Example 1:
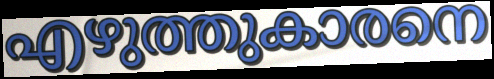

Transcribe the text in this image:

എഴുത്തുകാരനെ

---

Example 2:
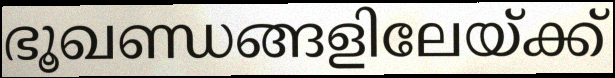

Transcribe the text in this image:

ഭൂഖണ്ഡങ്ങളിലേയ്ക്ക്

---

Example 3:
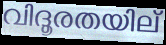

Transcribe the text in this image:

വിദൂരതയില്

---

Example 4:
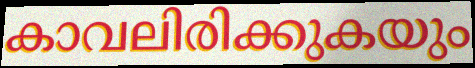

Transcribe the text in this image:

കാവലിരിക്കുകയും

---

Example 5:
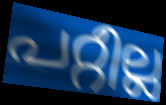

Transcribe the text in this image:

പറ്റീല്ല